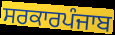
ਸਰਕਾਰਪੰਜਾਬ